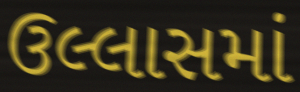
ઉલ્લાસમાં